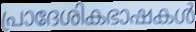
പ്രാദേശികഭാഷകൾ